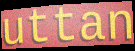
uttan